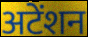
अटेंशन